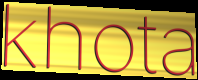
khota